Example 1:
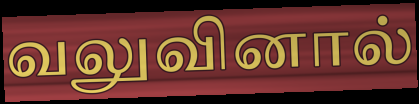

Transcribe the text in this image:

வலுவினால்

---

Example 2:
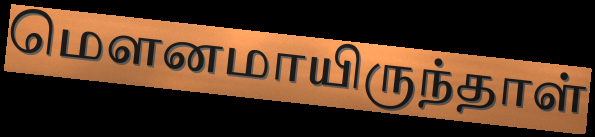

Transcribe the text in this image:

மௌனமாயிருந்தாள்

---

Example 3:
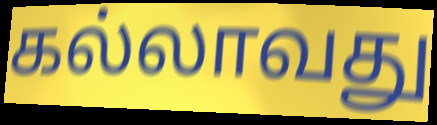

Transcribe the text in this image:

கல்லாவது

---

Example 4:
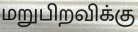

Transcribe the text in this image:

மறுபிறவிக்கு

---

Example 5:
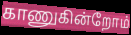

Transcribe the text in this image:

காணுகின்றோம்